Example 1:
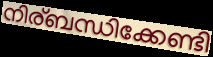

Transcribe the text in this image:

നിര്ബന്ധിക്കേണ്ടി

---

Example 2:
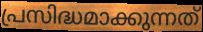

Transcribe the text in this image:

പ്രസിദ്ധമാക്കുന്നത്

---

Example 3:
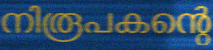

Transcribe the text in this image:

നിരൂപകന്റെ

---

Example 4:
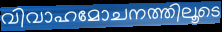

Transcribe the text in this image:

വിവാഹമോചനത്തിലൂടെ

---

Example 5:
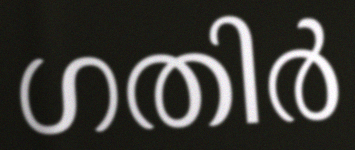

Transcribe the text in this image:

ഗതിർ